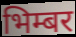
भिम्बर